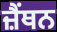
ਜ਼ੈਂਥਨ